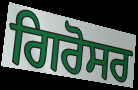
ਗਿਰੋਸਰ